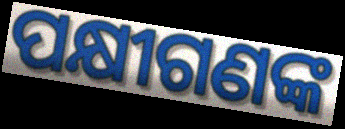
ପକ୍ଷୀଗଣଙ୍କ